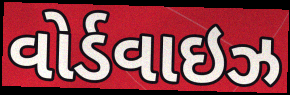
વોર્ડવાઇઝ